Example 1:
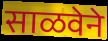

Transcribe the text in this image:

साळवेने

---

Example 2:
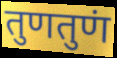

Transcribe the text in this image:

तुणतुणं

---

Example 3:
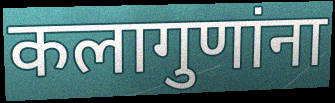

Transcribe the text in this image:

कलागुणांना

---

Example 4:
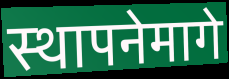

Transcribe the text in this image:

स्थापनेमागे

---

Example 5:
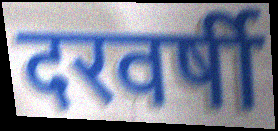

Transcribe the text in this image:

दरवर्षी